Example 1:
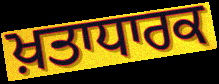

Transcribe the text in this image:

ਖ਼ਤਾਧਾਰਕ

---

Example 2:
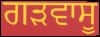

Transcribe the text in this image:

ਗੜਵਾਸੂ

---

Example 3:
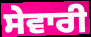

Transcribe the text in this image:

ਸੇਵਾਰੀ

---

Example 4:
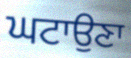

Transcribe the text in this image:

ਘਟਾਉਣਾ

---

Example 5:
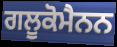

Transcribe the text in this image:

ਗਲੂਕੋਮੈਨਨ